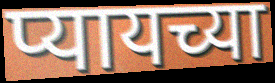
प्यायच्या